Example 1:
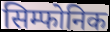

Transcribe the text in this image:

सिम्फोनिक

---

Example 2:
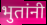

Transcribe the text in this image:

भुतांनी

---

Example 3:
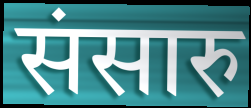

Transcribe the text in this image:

संसारु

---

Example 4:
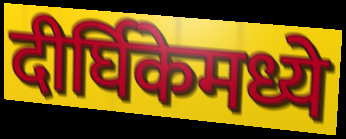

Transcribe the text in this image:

दीर्घिकेमध्ये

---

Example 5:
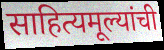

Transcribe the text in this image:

साहित्यमूल्यांची